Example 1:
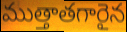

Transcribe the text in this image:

ముత్తాతగారైన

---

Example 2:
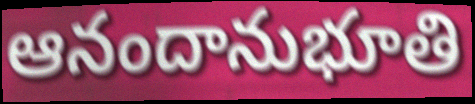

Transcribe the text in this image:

ఆనందానుభూతి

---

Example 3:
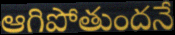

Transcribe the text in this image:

ఆగిపోతుందనే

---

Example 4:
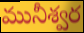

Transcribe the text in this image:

మునీశ్వర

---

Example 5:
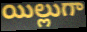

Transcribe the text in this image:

యిల్లుగా